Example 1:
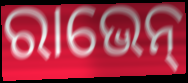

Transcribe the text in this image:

ରାଭେନ୍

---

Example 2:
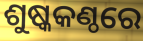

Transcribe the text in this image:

ଶୁଷ୍କକଣ୍ଠରେ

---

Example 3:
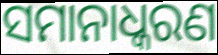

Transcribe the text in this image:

ସମାନାଧ୍କରଣ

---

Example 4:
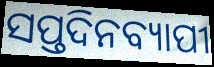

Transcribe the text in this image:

ସପ୍ତଦିନବ୍ୟାପୀ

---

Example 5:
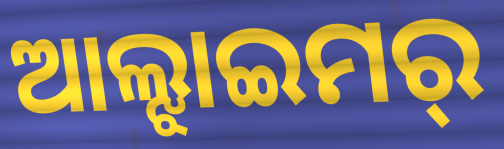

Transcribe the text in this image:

ଆଲ୍ଝାଇମର୍